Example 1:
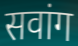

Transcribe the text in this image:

सवांग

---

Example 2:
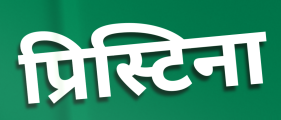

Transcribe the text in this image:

प्रिस्टिना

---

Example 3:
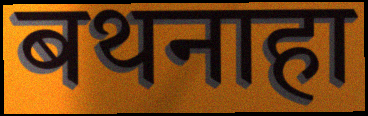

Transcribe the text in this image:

बथनाहा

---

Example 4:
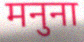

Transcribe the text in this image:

मनुना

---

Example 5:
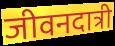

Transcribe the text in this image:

जीवनदात्री